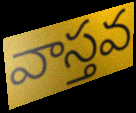
వాస్తవ